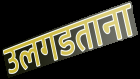
उलगडताना